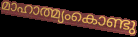
മാഹാത്മ്യംകൊണ്ടു